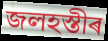
জলহস্তীৰ